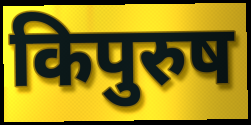
किपुरुष